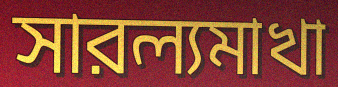
সারল্যমাখা